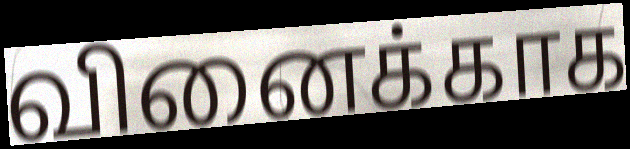
வினைக்காக